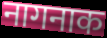
नागनाक